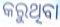
କରୁଥିବା